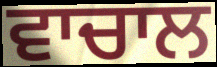
ਵਾਚਾਲ